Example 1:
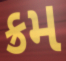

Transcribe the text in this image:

ક્રમ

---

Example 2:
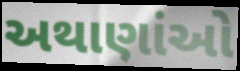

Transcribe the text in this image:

અથાણાંઓ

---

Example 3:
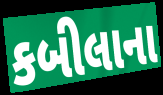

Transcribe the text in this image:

કબીલાના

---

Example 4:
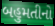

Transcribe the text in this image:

બહુમતીનો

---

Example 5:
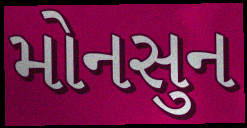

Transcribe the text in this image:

મોનસુન